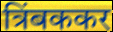
त्रिंबककर